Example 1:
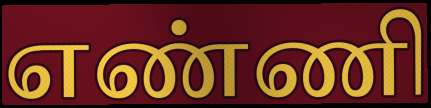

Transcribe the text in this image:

எண்ணி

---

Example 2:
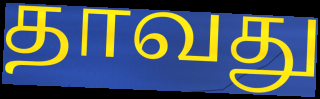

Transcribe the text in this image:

தாவது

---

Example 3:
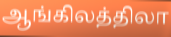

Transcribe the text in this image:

ஆங்கிலத்திலா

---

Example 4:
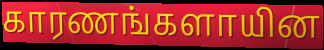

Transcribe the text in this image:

காரணங்களாயின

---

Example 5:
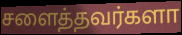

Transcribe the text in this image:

சளைத்தவர்களா